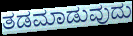
ತಡಮಾಡುವುದು